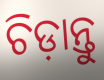
ଚିଡ଼ାନ୍ତୁ